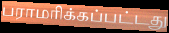
பராமரிக்கப்பட்டது